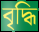
বৃদ্ধি